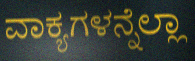
ವಾಕ್ಯಗಳನ್ನೆಲ್ಲಾ